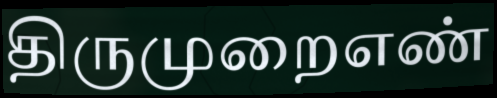
திருமுறைஎண்